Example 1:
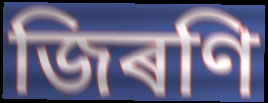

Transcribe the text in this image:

জিৰণি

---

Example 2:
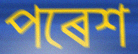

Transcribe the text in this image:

পৰেশ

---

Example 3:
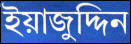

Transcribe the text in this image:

ইয়াজুদ্দিন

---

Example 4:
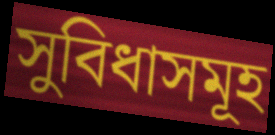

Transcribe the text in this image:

সুবিধাসমূহ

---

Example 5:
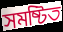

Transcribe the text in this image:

সমষ্টিত